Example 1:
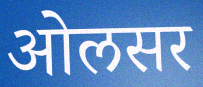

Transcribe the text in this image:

ओलसर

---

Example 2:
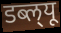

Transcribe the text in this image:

डब्ल्यू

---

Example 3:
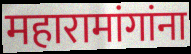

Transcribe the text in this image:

महारामांगांना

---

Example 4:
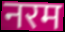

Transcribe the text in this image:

नरम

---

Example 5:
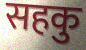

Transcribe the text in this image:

सहकु